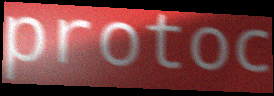
protoc